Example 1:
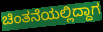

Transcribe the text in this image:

ಚಿಂತನೆಯಲ್ಲಿದ್ದಾಗ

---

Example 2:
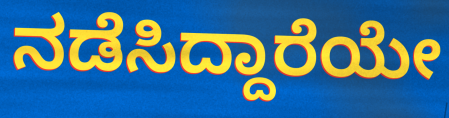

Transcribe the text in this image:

ನಡೆಸಿದ್ದಾರೆಯೇ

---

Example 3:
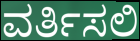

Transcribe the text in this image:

ವರ್ತಿಸಲಿ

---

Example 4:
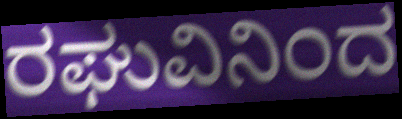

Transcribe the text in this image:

ರಘುವಿನಿಂದ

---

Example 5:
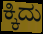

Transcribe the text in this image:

ಕ್ಕಿದು